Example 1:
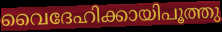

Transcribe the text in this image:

വൈദേഹിക്കായിപൂത്തു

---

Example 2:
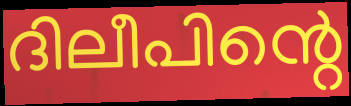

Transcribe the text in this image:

ദിലീപിന്റെ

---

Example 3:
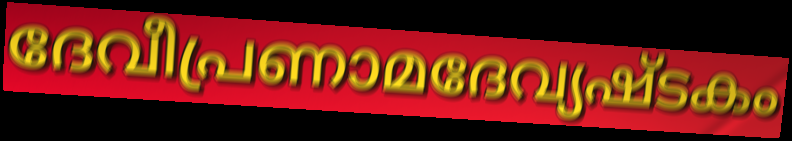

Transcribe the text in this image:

ദേവീപ്രണാമദേവ്യഷ്ടകം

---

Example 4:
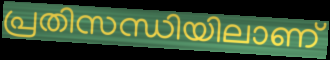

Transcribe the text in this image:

പ്രതിസന്ധിയിലാണ്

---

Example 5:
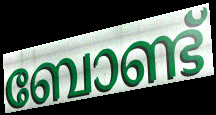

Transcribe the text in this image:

ബോണ്ട്